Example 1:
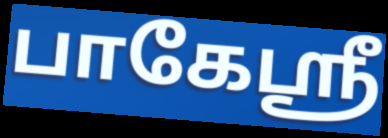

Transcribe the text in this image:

பாகேஸ்ரீ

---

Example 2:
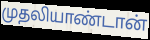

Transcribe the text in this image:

முதலியாண்டான்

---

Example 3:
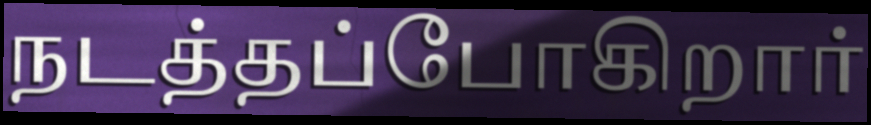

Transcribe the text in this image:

நடத்தப்போகிறார்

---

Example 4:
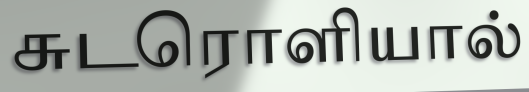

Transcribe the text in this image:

சுடரொளியால்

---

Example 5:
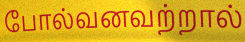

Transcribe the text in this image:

போல்வனவற்றால்